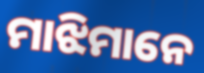
ମାଝିମାନେ